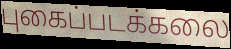
புகைப்படக்கலை